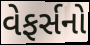
વેફર્સનો